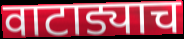
वाटाड्याच